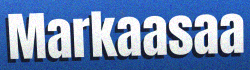
Markaasaa